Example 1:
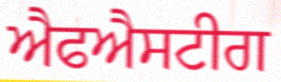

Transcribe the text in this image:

ਐਫਐਸਟੀਗ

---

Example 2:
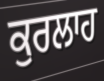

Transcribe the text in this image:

ਕੁਰਲਾਹ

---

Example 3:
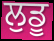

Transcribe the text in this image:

ਲੁਡੂ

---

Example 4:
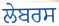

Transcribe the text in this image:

ਲੇਬਰਸ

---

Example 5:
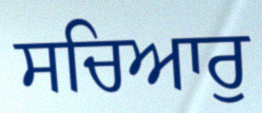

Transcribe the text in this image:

ਸਚਿਆਰੁ